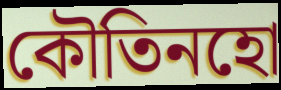
কৌতিনহো